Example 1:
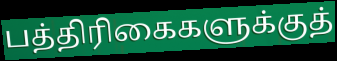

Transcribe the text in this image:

பத்திரிகைகளுக்குத்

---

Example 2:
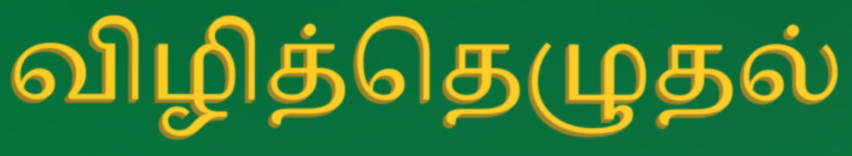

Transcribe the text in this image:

விழித்தெழுதல்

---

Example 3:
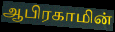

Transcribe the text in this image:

ஆபிரகாமின்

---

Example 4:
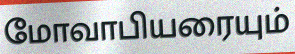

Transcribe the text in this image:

மோவாபியரையும்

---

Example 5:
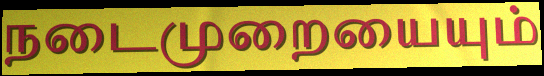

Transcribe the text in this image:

நடைமுறையையும்